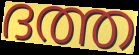
ദത്ത